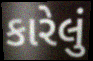
કારેલું